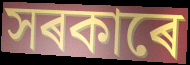
সৰকাৰে